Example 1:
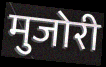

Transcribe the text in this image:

मुजोरी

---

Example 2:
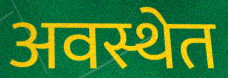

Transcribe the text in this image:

अवस्थेत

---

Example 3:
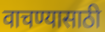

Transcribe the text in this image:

वाचण्यासाठी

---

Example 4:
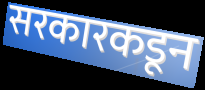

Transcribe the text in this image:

सरकारकडून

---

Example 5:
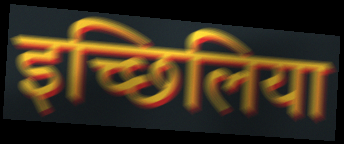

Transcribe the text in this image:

इच्छिलिया